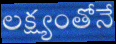
లక్ష్యంతోనే